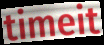
timeit